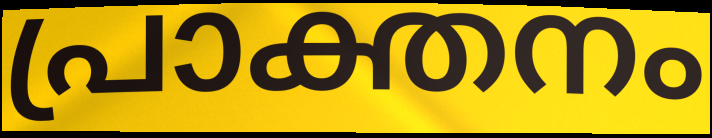
പ്രാക്തനം